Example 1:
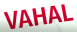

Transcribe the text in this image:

VAHAL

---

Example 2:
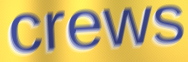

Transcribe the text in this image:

crews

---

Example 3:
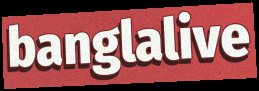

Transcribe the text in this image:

banglalive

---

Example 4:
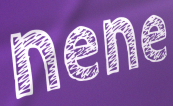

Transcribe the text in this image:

nene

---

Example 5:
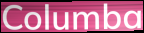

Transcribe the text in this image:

Columba